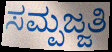
ಸಮ್ಪಜ್ಜತಿ